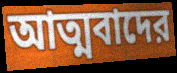
আত্মবাদের